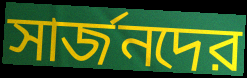
সার্জনদের